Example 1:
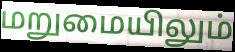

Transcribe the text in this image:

மறுமையிலும்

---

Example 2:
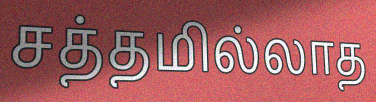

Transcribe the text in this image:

சத்தமில்லாத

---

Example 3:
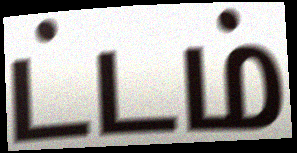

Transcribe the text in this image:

ட்டம்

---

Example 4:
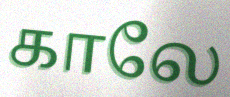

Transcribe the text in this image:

காலே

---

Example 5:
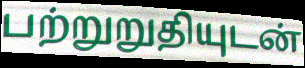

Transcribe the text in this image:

பற்றுறுதியுடன்